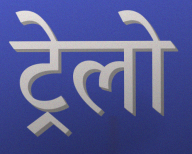
ट्रेलो